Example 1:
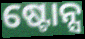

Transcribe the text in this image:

ଷ୍ଟୋନ୍ସ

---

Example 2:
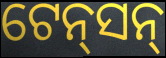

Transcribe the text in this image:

ଟେନ୍‌ସନ୍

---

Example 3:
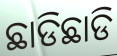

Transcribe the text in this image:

ଛାଡିଛାଡି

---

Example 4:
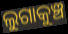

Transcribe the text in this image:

ଲୁଗାକୁଞ୍ଚ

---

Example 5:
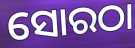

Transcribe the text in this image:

ସୋରଠା